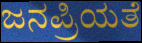
ಜನಪ್ರಿಯತೆ